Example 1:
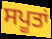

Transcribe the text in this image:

ਸਪੂਤਾਂ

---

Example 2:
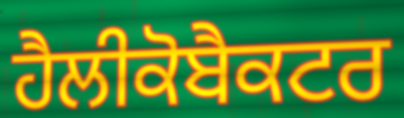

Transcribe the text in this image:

ਹੈਲੀਕੋਬੈਕਟਰ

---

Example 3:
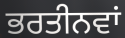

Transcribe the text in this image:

ਭਰਤੀਨਵਾਂ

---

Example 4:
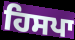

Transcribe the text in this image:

ਹਿਸਪਾ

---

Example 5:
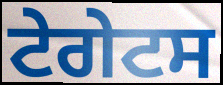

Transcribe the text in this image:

ਟੇਗੇਟਸ